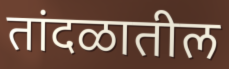
तांदळातील